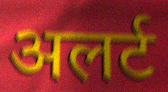
अलर्ट